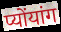
प्योंयांग